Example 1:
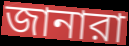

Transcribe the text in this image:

জানারা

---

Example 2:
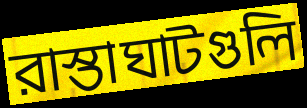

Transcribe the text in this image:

রাস্তাঘাটগুলি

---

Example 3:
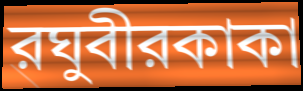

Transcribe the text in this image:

রঘুবীরকাকা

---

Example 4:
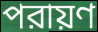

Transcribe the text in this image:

পরায়ণ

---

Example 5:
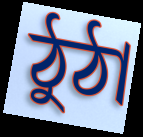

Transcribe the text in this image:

ঠুঠা